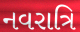
નવરાત્રિ